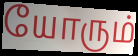
யோரும்